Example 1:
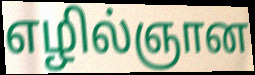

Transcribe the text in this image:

எழில்ஞான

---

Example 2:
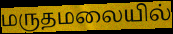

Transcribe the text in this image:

மருதமலையில்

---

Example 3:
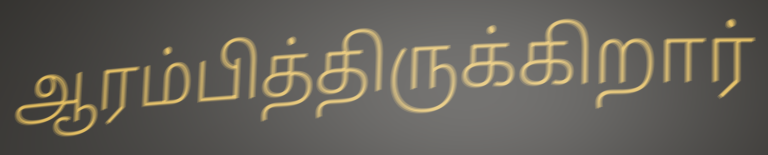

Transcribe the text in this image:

ஆரம்பித்திருக்கிறார்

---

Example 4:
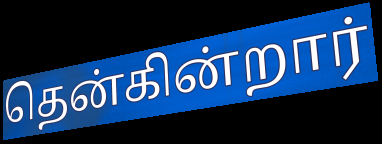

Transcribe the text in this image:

தென்கின்றார்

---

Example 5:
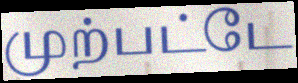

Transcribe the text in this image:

முற்பட்டே